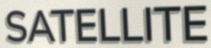
SATELLITE